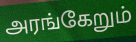
அரங்கேறும்